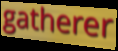
gatherer